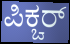
ಪಿಕ್ಚರ್